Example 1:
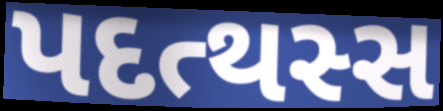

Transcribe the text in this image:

પદત્થસ્સ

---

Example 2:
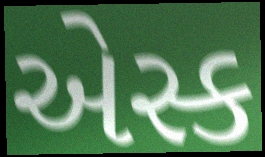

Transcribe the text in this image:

એસ્ક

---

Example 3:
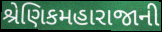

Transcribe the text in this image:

શ્રેણિકમહારાજાની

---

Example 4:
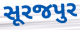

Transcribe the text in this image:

સૂરજપુર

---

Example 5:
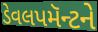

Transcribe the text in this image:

ડેવલપમૅન્ટને